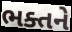
ભક્તને